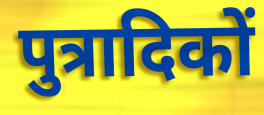
पुत्रादिकों